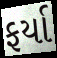
ફર્યા